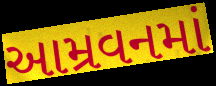
આમ્રવનમાં